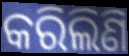
କରିଲିଣି